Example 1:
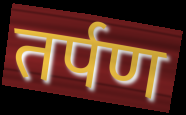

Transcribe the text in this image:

तर्पण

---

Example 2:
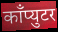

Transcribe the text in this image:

काँप्युटर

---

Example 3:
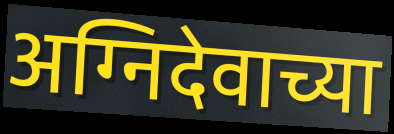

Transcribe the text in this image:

अग्निदेवाच्या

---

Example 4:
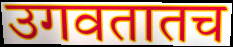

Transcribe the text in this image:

उगवतातच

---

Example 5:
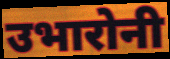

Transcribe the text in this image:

उभारोनी